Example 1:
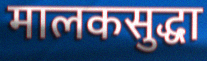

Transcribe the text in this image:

मालकसुद्धा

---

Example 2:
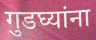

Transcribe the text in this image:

गुडघ्यांना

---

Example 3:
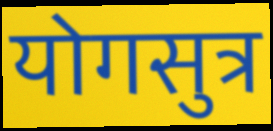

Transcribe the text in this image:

योगसुत्र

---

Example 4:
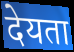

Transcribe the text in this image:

देयता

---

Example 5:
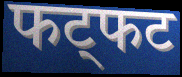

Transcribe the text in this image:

फट्फट